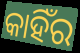
କାହିଁର